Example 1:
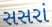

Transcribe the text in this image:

સસરાં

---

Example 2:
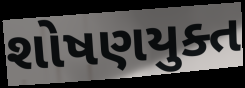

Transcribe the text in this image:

શોષણયુક્ત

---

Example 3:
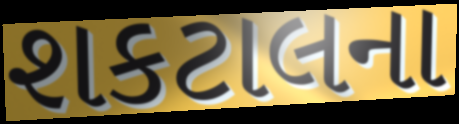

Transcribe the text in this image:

શકટાલના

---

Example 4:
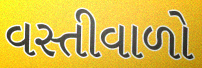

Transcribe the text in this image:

વસ્તીવાળો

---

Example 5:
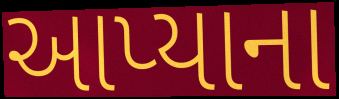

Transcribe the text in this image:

આપ્યાના